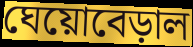
ঘেয়োবেড়াল